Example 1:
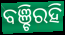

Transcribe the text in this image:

ବଞ୍ଚିରହି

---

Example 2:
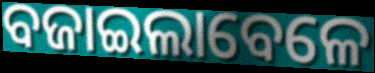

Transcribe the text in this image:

ବଜାଇଲାବେଳେ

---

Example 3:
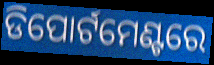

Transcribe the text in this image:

ଡିପୋର୍ଟମେଣ୍ଟରେ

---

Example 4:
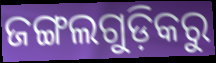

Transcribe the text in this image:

ଜଙ୍ଗଲଗୁଡ଼ିକରୁ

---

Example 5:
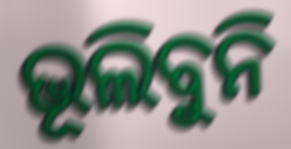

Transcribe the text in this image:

ଭୂଲିବୁନି